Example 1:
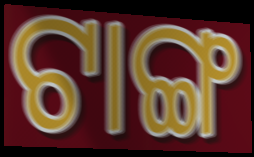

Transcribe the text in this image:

ଟାଙ୍ଗ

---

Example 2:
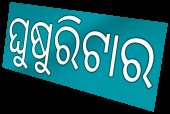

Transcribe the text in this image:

ଘୁଷୁରିଟାର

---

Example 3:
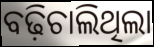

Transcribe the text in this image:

ବଢ଼ିଚାଲିଥିଲା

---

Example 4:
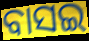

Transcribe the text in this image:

ବାସଇ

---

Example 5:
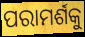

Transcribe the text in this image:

ପରାମର୍ଶକୁ